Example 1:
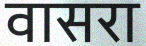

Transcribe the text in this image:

वासरा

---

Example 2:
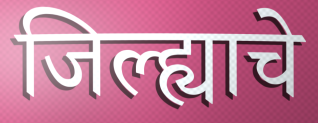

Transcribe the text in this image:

जिल्ह्याचे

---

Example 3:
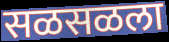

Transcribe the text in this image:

सळसळला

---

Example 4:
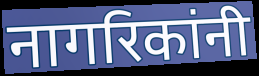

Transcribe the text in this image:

नागरिकांनी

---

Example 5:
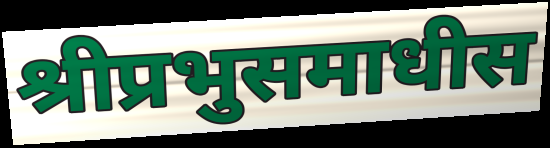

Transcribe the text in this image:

श्रीप्रभुसमाधीस